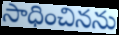
సాధించినను